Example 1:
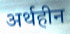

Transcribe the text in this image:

अर्थहीन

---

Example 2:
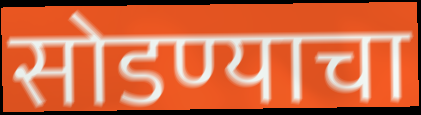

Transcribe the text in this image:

सोडण्याचा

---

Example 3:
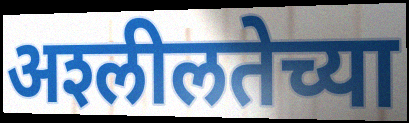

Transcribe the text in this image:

अश्‍लीलतेच्या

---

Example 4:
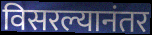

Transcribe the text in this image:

विसरल्यानंतर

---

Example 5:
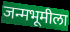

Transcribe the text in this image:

जन्मभूमीला